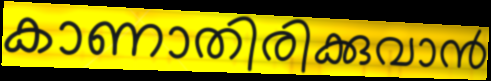
കാണാതിരിക്കുവാൻ